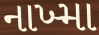
નાખ્મા